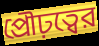
প্রৌঢ়ত্বের